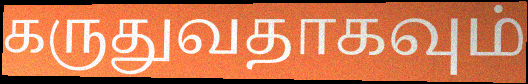
கருதுவதாகவும்